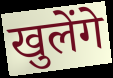
खुलेंगे